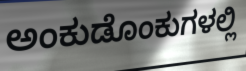
ಅಂಕುಡೊಂಕುಗಳಲ್ಲಿ